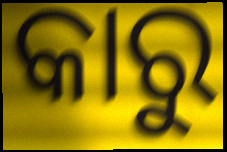
କାରୁ